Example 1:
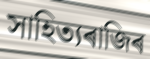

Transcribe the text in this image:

সাহিত্যৰাজিৰ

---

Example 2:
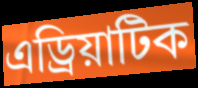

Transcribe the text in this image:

এড্ৰিয়াটিক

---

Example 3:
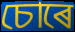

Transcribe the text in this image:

চোৰে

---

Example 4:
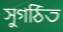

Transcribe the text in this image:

সুগঠিত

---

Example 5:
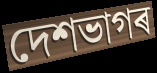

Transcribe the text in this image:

দেশভাগৰ